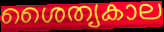
ശൈത്യകാല